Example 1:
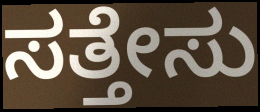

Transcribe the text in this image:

ಸತ್ತೇಸು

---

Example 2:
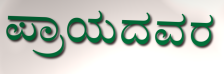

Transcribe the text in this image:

ಪ್ರಾಯದವರ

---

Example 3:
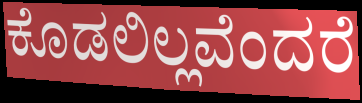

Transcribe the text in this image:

ಕೊಡಲಿಲ್ಲವೆಂದರೆ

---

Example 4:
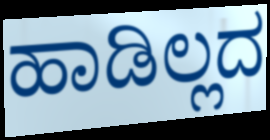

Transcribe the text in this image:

ಹಾಡಿಲ್ಲದ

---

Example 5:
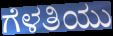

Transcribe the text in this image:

ಗೆಳತಿಯು